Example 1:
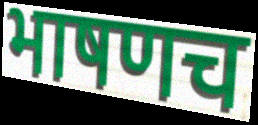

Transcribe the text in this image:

भाषणच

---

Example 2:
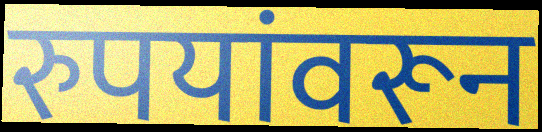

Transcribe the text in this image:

रुपयांवरून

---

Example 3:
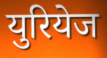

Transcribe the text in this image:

युरियेज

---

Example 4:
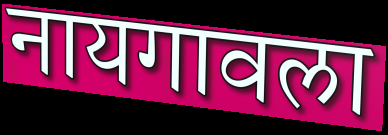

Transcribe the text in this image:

नायगावला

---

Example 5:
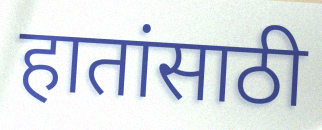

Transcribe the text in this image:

हातांसाठी